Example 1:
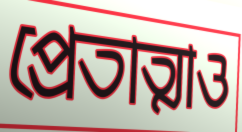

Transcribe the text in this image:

প্রেতাত্মাও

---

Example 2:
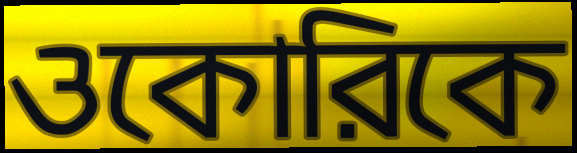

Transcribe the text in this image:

ওকোরিকে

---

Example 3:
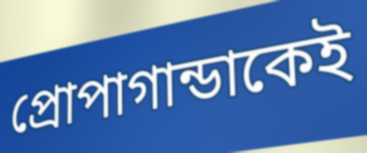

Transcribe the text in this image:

প্রোপাগান্ডাকেই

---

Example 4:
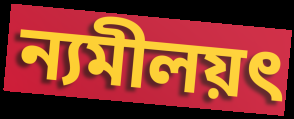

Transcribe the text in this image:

ন্যমীলয়ৎ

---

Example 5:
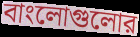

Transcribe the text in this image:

বাংলোগুলোর